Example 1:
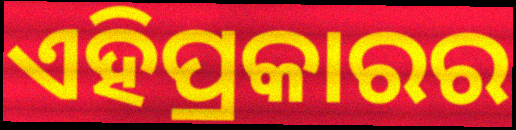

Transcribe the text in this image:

ଏହିପ୍ରକାରର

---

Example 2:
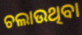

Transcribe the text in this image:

ଚଲାଉଥିବା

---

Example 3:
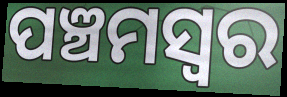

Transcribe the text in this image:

ପଞ୍ଚମସ୍ଵର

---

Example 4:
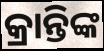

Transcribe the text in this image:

କ୍ରାନ୍ତିଙ୍କ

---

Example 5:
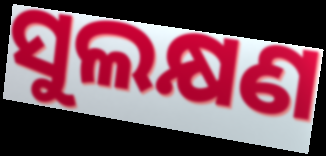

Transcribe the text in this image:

ସୁଲକ୍ଷଣ